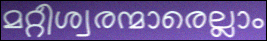
മറ്റീശ്വരന്മാരെല്ലാം